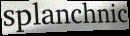
splanchnic